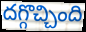
దగ్గొచ్చింది